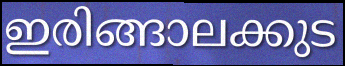
ഇരിങ്ങാലക്കുട